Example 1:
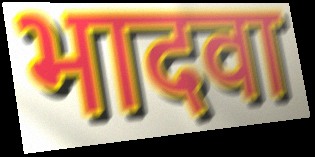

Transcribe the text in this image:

भादवा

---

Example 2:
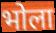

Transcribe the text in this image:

भोला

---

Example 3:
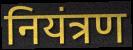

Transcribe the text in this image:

नियंत्रण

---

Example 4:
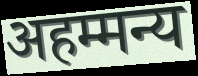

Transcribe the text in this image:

अहम्मन्य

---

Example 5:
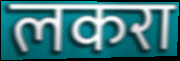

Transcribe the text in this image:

लकरा